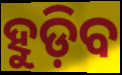
ହୁଡ଼ିବ